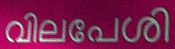
വിലപേശി